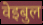
वेइबुल